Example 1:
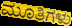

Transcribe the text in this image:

ಮೂತಿಗಳು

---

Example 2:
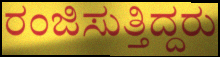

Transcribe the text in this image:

ರಂಜಿಸುತ್ತಿದ್ದರು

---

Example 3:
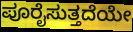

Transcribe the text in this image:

ಪೂರೈಸುತ್ತದೆಯೇ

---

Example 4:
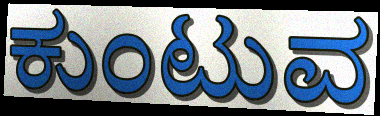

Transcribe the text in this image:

ಕುಂಟುವ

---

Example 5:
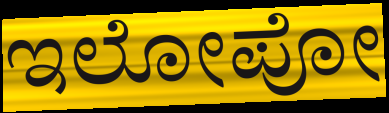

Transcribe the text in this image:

ಇಲೋಪೋ